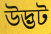
উদ্ভট